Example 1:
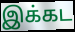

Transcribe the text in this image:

இக்கட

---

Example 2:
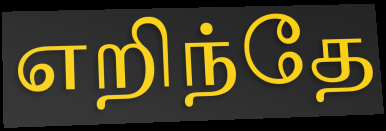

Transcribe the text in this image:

எறிந்தே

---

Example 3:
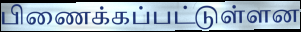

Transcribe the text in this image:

பிணைக்கப்பட்டுள்ளன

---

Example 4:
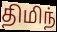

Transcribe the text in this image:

திமிந்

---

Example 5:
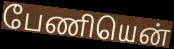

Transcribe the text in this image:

பேணியென்